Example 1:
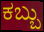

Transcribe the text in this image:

ಕಬ್ಬು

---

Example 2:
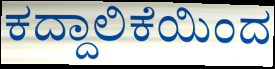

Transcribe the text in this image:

ಕದ್ದಾಲಿಕೆಯಿಂದ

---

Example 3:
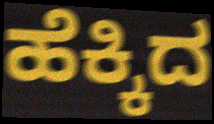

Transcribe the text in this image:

ಹೆಕ್ಕಿದ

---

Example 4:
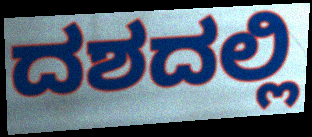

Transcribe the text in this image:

ದಶದಲ್ಲಿ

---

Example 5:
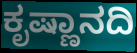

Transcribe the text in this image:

ಕೃಷ್ಣಾನದಿ